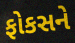
ફોકસને